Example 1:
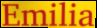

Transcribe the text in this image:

Emilia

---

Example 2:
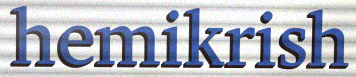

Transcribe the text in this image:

hemikrish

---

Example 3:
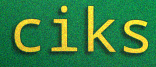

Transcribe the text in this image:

ciks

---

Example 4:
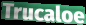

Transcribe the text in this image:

Trucaloe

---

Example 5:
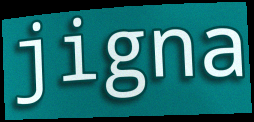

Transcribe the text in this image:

jigna